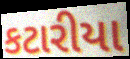
કટારીયા